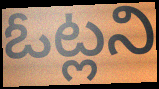
ఓట్లని